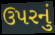
ઉપરનું